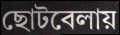
ছোটবেলায়